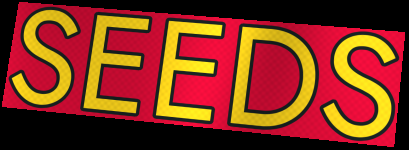
SEEDS